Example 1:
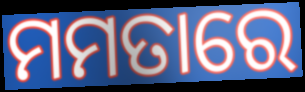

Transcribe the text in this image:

ମମତାରେ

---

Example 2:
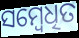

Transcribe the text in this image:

ସମ୍ବେଧିତ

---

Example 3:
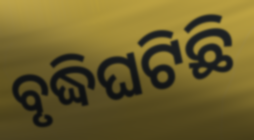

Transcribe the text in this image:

ବୃଦ୍ଧିଘଟିଛି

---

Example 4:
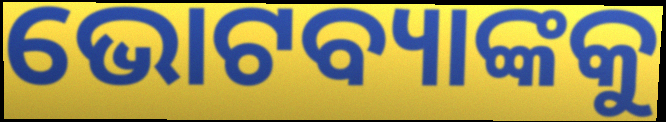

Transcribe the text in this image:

ଭୋଟବ୍ୟାଙ୍କକୁ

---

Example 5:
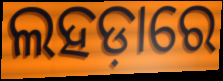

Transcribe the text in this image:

ଲହଡ଼ାରେ